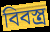
বিবস্ত্র